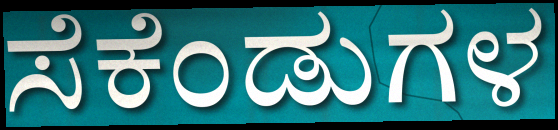
ಸೆಕೆಂಡುಗಳ